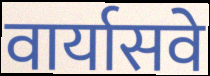
वार्यासवे